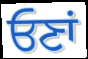
ਓਣਾਂ